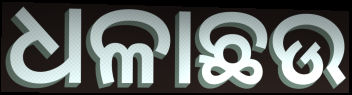
ଧଳାଛଉ